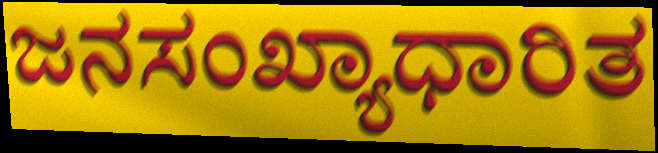
ಜನಸಂಖ್ಯಾಧಾರಿತ